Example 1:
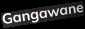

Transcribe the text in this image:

Gangawane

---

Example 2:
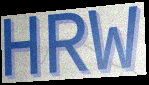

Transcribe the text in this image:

HRW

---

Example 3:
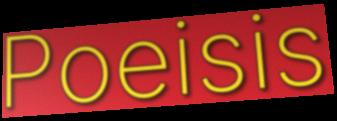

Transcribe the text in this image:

Poeisis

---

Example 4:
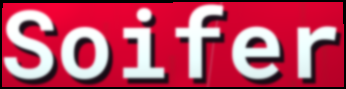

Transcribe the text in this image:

Soifer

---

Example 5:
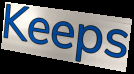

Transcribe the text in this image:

Keeps